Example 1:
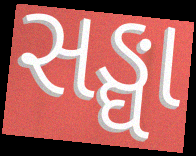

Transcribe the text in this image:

સઙ્ઘા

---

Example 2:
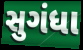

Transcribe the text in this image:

સુગંધા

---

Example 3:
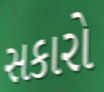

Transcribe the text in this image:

સકારો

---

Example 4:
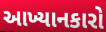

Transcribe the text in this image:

આખ્યાનકારો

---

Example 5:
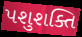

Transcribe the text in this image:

પશુશક્તિ